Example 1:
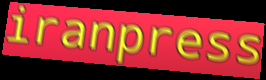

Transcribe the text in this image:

iranpress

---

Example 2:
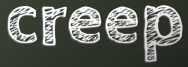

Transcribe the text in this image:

creep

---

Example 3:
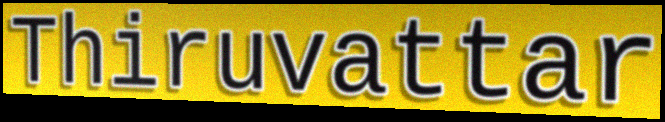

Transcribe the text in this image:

Thiruvattar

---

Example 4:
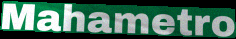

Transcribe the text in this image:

Mahametro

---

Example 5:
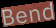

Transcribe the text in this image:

Bend